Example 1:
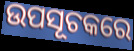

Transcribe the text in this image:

ଉପସୂଚକରେ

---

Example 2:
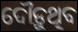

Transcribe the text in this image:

ଦୌଡ଼ୁଥିବ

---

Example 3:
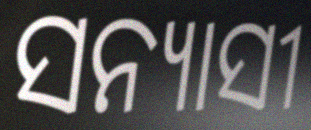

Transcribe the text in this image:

ସନ୍ଯାସୀ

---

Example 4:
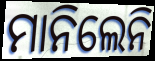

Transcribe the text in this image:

ମାନିଲେନି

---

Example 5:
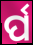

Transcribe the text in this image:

ର୍ପ